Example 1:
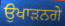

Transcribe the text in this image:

ਉਖਾੜਨਗੇ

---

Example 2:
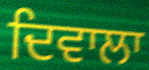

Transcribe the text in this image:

ਦਿਵਾਲਾ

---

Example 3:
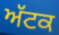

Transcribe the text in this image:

ਅੱਟਕ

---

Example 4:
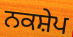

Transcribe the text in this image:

ਨਕਸ਼ੇਪ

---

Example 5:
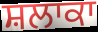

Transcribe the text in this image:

ਸ਼ਲਾਕਾ